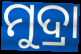
ମୁଦ୍ରା